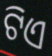
ଟିଏ